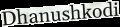
Dhanushkodi